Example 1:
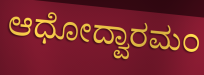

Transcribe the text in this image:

ಆಧೋದ್ವಾರಮಂ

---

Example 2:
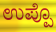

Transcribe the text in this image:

ಉಪ್ಪೊ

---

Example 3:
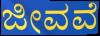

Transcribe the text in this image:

ಜೀವವೆ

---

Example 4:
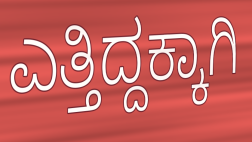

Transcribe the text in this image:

ಎತ್ತಿದ್ದಕ್ಕಾಗಿ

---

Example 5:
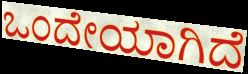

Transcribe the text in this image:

ಒಂದೇಯಾಗಿದೆ